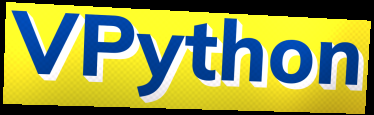
VPython